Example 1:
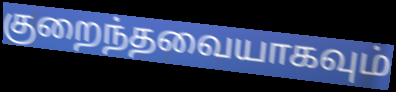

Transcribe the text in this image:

குறைந்தவையாகவும்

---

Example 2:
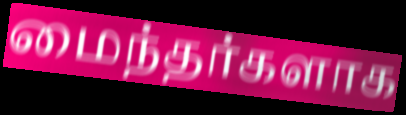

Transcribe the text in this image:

மைந்தர்களாக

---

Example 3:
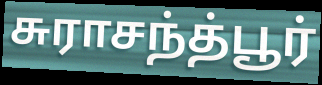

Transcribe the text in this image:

சுராசந்த்பூர்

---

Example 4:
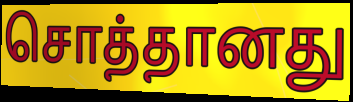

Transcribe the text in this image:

சொத்தானது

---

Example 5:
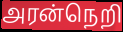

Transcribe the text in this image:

அரன்நெறி